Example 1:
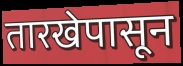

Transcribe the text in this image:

तारखेपासून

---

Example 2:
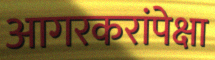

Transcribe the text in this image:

आगरकरांपेक्षा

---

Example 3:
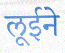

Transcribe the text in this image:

लूईने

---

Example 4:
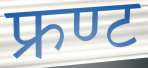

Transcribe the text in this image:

फ्रण्ट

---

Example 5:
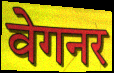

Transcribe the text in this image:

वेगनर